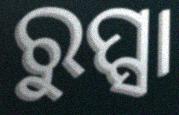
ରୁପ୍ସା